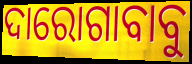
ଦାରୋଗାବାବୁ